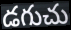
డగుచు